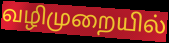
வழிமுறையில்